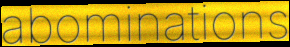
abominations